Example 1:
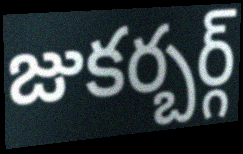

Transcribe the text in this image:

జుకర్బర్గ్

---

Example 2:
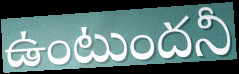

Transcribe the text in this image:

ఉంటుందనీ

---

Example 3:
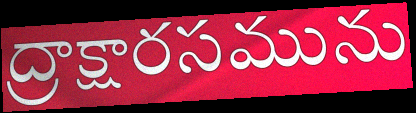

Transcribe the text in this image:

ద్రాక్షారసమును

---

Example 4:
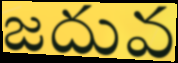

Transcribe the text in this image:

జదువ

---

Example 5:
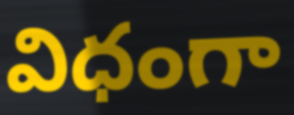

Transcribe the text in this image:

విధంగా